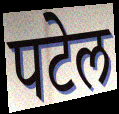
पटेल